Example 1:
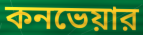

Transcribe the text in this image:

কনভেয়ার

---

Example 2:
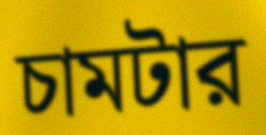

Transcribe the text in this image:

চামটার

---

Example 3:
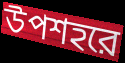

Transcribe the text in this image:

উপশহরে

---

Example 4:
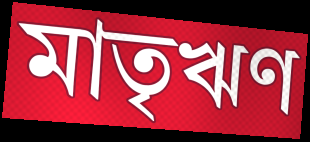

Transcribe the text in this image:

মাতৃঋণ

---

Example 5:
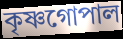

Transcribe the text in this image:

কৃষ্ণগোপাল